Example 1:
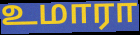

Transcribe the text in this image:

உமாரா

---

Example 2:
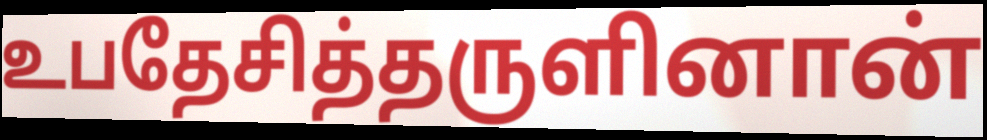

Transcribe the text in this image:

உபதேசித்தருளினான்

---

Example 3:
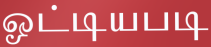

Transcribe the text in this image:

ஓட்டியபடி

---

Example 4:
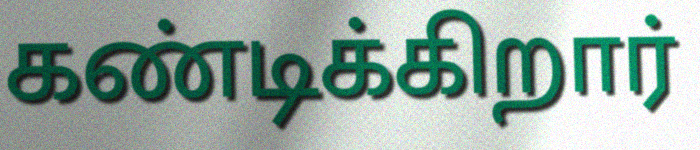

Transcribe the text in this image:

கண்டிக்கிறார்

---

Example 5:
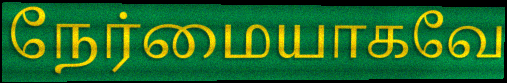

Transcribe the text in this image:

நேர்மையாகவே